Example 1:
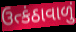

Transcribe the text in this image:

ઉત્કંઠાવાળું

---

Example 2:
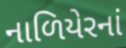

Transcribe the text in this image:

નાળિયેરનાં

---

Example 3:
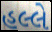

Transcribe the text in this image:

હલ્લે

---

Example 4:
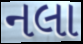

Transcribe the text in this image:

નલા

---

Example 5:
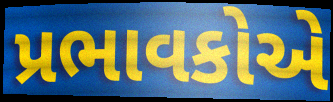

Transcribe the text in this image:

પ્રભાવકોએ